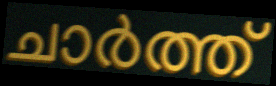
ചാർത്ത്